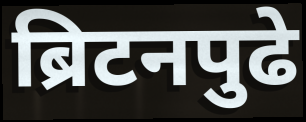
ब्रिटनपुढे